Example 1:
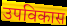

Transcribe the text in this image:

उपविकास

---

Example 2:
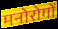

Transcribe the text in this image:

मनोरोगों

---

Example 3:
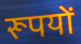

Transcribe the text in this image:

रूपयों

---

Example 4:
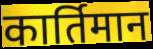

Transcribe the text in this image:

कार्तिमान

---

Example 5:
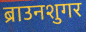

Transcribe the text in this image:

ब्राउनशुगर